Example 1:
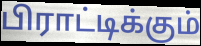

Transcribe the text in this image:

பிராட்டிக்கும்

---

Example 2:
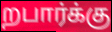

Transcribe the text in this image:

றபார்க்கு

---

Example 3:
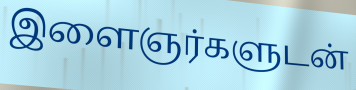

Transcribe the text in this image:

இளைஞர்களுடன்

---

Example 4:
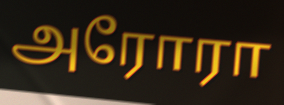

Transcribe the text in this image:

அரோரா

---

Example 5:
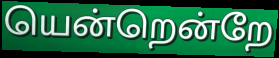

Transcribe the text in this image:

யென்றென்றே